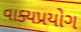
વાક્યપ્રયોગ